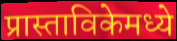
प्रास्ताविकेमध्ये